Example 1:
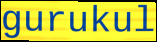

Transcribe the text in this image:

gurukul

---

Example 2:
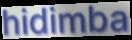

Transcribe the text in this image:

hidimba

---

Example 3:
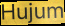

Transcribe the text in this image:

Hujum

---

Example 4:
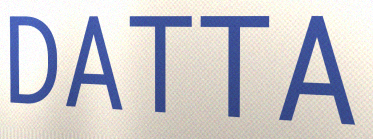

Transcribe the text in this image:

DATTA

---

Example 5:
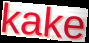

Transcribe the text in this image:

kake